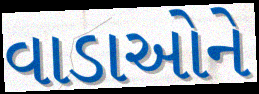
વાડાઓને